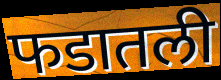
फडातली